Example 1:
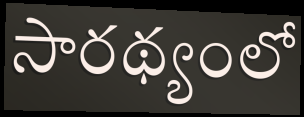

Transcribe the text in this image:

సారథ్యంలో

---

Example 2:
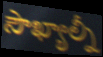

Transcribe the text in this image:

సౌఖ్యాల్నీ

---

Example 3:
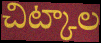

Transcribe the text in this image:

చిట్కాల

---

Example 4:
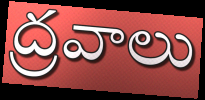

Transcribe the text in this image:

ద్రవాలు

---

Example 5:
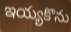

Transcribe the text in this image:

ఇయ్యకొను